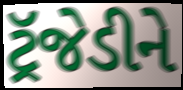
ટ્રૅજેડીને